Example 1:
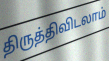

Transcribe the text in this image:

திருத்திவிடலாம்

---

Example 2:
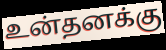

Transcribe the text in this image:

உன்தனக்கு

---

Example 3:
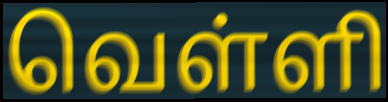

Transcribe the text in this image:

வெள்ளி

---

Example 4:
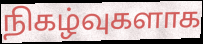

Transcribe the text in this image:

நிகழ்வுகளாக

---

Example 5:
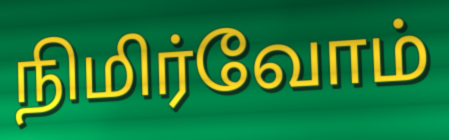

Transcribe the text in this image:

நிமிர்வோம்